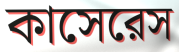
কাসেরেস